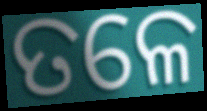
ତଳେ